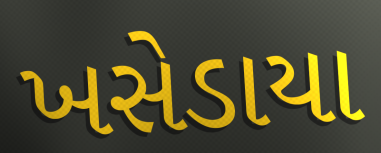
ખસેડાયા